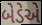
બેડેએ